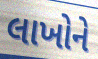
લાખોને